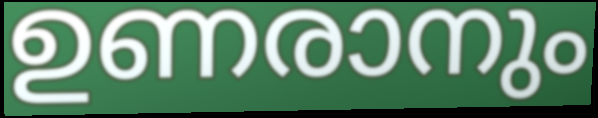
ഉണരാനും